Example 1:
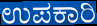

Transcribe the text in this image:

ಉಪಕಾರಿ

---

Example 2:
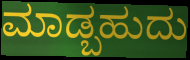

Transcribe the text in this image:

ಮಾಡ್ಬಹುದು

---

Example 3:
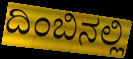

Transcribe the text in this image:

ದಿಂಬಿನಲ್ಲಿ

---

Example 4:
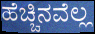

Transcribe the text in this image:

ಹೆಚ್ಚಿನವೆಲ್ಲ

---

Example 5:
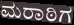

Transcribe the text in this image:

ಮರಾಠಿಗ